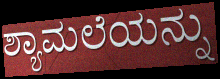
ಶ್ಯಾಮಲೆಯನ್ನು